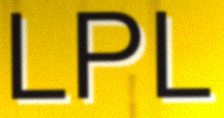
LPL